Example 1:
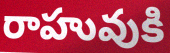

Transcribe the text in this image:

రాహువుకి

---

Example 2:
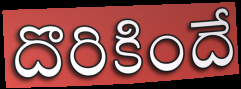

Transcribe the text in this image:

దొరికిందే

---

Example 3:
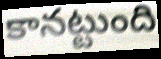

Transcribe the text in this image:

కానట్టుంది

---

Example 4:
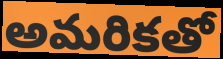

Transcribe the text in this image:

అమరికతో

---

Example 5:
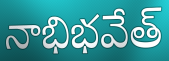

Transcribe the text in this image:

నాభిభవేత్